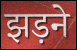
झड़ने